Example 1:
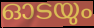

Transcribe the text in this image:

ഓടയും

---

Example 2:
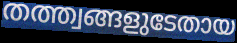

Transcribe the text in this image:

തത്ത്വങ്ങളുടേതായ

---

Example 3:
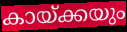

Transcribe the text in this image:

കായ്ക്കയും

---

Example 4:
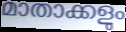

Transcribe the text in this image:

മാതാക്കളും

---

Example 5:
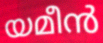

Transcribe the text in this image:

യമീൻ